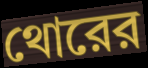
থোরের